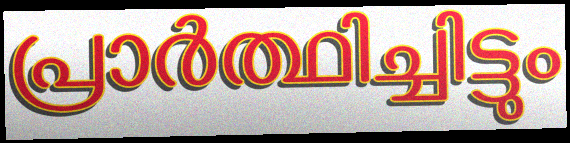
പ്രാർത്ഥിച്ചിട്ടും